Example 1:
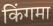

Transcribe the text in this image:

किंगमा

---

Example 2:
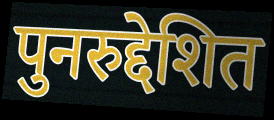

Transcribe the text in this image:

पुनरुद्देशित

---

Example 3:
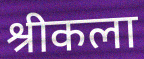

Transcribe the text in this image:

श्रीकला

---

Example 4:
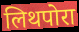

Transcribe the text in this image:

लिथपोरा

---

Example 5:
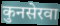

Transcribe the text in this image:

कुनसेरवा